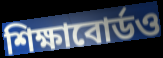
শিক্ষাবোর্ডও